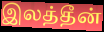
இலத்தீன்